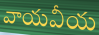
వాయవీయ